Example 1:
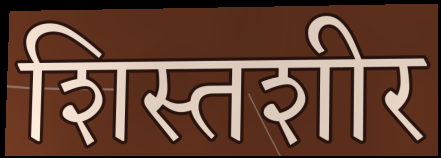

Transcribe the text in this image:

शिस्तशीर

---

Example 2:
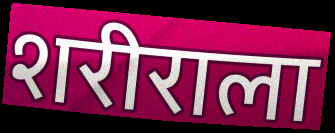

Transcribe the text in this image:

शरीराला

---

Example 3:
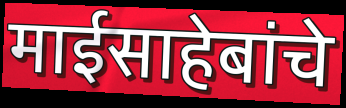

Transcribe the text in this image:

माईसाहेबांचे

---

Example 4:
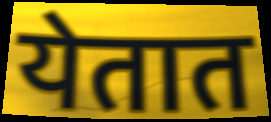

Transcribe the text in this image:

येतात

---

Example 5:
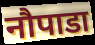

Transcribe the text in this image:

नौपाडा